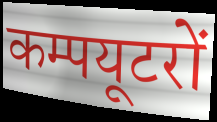
कम्पयूटरों